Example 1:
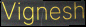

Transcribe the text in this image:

Vignesh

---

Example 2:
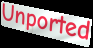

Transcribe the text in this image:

Unported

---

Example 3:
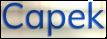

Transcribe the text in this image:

Capek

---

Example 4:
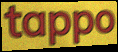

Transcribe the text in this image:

tappo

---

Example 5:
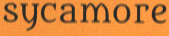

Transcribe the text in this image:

sycamore